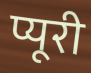
प्यूरी